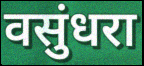
वसुंधरा